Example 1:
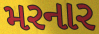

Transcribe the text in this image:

મરનાર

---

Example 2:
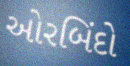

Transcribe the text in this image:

ઓરબિંદો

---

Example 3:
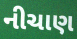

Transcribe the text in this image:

નીચાણ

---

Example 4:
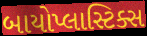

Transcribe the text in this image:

બાયોપ્લાસ્ટિક્સ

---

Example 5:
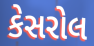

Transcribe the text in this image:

કેસરોલ